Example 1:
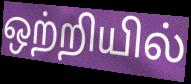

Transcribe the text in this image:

ஒற்றியில்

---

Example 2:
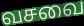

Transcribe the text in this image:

வசவை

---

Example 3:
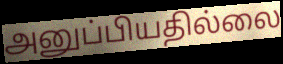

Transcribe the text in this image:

அனுப்பியதில்லை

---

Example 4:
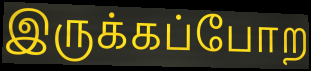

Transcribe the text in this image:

இருக்கப்போற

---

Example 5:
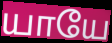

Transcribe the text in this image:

யாயே